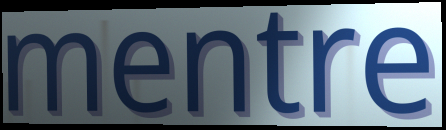
mentre